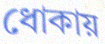
ধোকায়